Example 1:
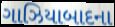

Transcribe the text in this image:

ગાઝિયાબાદના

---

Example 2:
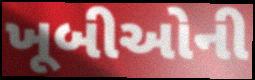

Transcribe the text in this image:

ખૂબીઓની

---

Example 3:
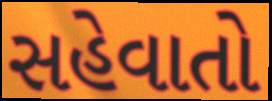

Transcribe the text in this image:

સહેવાતો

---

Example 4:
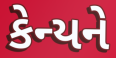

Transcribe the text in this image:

કેન્યને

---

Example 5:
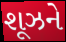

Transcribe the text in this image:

શૂઝને